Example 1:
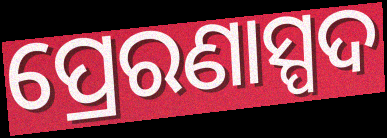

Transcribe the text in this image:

ପ୍ରେରଣାସ୍ପଦ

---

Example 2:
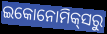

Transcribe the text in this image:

ଇକୋନୋମିକ୍‌ସରୁ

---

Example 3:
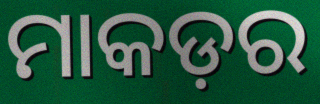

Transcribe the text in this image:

ମାକଡ଼ର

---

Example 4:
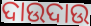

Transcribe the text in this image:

ଦାଉଦାଉ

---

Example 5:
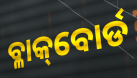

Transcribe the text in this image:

ବ୍ଳାକ୍‌ବୋର୍ଡ